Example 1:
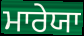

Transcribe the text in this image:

ਮਾਰੇਯਾ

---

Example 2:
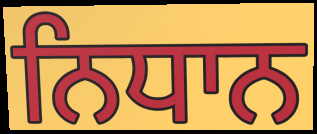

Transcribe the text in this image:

ਨਿਧਾਨ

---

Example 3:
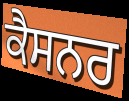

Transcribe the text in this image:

ਕੈਸਨਰ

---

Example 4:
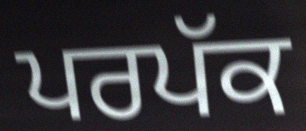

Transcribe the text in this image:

ਪਰਪੱਕ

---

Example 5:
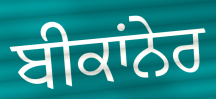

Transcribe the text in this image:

ਬੀਕਾਂਨੇਰ